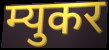
म्युकर